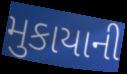
મુકાયાની